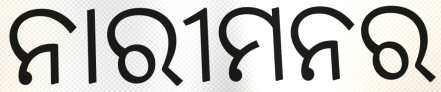
ନାରୀମନର